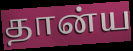
தான்ய